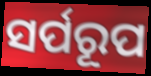
ସର୍ପରୂପ